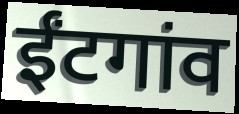
ईंटगांव